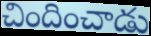
చిందించాడు